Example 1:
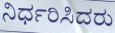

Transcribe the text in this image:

ನಿರ್ಧರಿಸಿದರು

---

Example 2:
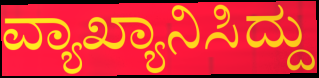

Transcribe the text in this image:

ವ್ಯಾಖ್ಯಾನಿಸಿದ್ದು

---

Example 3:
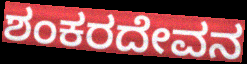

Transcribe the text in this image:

ಶಂಕರದೇವನ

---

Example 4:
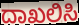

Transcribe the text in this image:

ದಾಖಲಿಸಿ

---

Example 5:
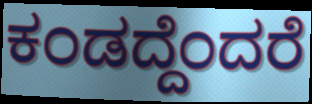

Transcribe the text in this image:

ಕಂಡದ್ದೆಂದರೆ